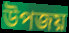
উপজয়